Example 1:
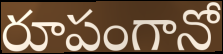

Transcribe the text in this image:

రూపంగానో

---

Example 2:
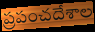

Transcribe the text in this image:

ప్రపంచదేశాల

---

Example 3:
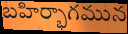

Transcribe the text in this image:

బహిర్భాగమున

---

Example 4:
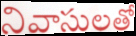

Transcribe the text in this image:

నివాసులతో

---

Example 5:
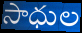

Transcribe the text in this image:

సాధుల